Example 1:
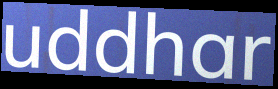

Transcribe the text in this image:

uddhar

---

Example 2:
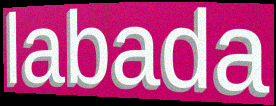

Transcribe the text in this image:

labada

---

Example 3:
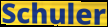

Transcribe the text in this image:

Schuler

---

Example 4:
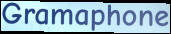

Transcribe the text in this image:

Gramaphone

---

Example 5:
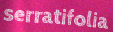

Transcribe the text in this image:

serratifolia